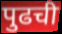
पुढची